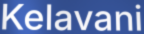
Kelavani